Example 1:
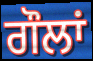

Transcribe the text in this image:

ਗੌਲਾਂ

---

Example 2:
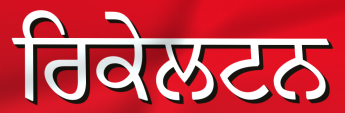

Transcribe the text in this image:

ਰਿਕੇਲਟਨ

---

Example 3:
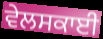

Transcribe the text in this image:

ਵੇਲਸਕਾਈ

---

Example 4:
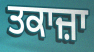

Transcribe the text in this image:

ਤਕਾਜ਼ਾ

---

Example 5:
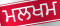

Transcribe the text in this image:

ਮਲਖਮ